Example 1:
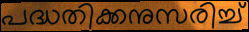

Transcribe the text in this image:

പദ്ധതിക്കനുസരിച്ച്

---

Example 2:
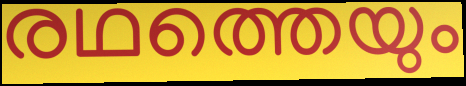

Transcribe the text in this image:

രഥത്തെയും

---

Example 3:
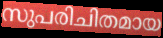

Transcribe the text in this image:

സുപരിചിതമായ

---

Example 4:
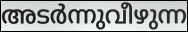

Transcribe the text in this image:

അടർന്നുവീഴുന്ന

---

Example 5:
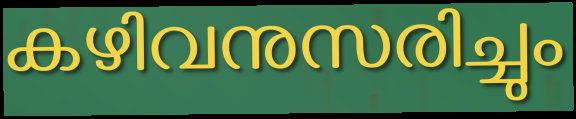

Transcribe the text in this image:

കഴിവനുസരിച്ചും